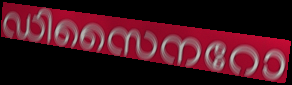
ഡിസൈനറോ